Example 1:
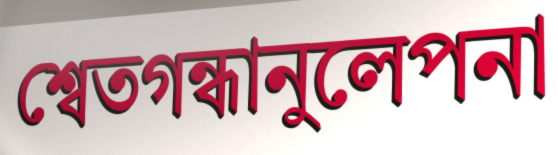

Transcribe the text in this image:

শ্বেতগন্ধানুলেপনা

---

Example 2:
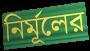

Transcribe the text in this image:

নির্মূলের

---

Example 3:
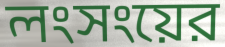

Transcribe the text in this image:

লংসংয়ের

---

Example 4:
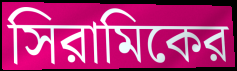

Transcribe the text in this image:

সিরামিকের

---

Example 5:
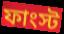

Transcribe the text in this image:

ফাংস্ট